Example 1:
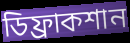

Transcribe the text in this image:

ডিফ্রাকশান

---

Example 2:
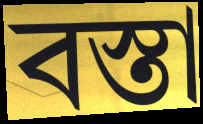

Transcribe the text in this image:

বস্তা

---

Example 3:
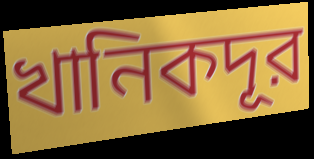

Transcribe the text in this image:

খানিকদূর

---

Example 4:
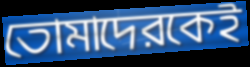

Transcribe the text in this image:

তোমাদেরকেই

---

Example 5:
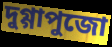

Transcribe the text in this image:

দুগ্গাপুজো